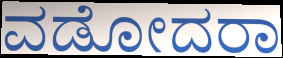
ವಡೋದರಾ